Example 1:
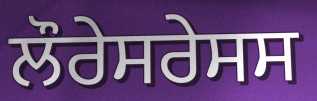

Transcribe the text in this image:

ਲੌਰੇਸਰੇਸਸ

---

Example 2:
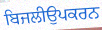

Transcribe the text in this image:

ਬਿਜਲੀਉਪਕਰਨ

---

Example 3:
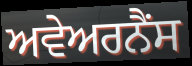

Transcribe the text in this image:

ਅਵੇਅਰਨੈਂਸ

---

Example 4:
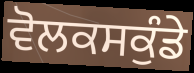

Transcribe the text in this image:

ਵੋਲਕਸਕੁੰਡੇ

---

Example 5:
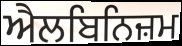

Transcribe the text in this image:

ਐਲਬਿਨਿਜ਼ਮ